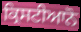
ਕ੍ਰਿਸਟੀਆਨੋ